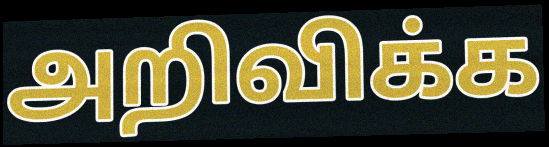
அறிவிக்க